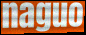
naguo